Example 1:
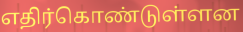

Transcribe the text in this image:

எதிர்கொண்டுள்ளன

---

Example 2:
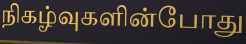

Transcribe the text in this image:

நிகழ்வுகளின்போது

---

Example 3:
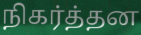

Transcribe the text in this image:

நிகர்த்தன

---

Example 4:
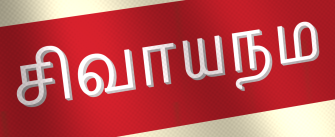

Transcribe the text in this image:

சிவாயநம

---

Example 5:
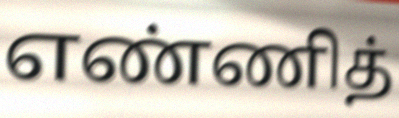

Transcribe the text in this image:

எண்ணித்